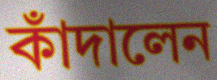
কাঁদালেন